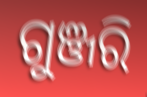
ଗୁଞ୍ଜରି